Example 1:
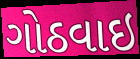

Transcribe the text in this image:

ગોઠવાઇ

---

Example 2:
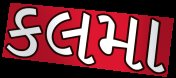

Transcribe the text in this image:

કલમા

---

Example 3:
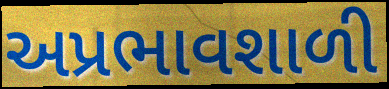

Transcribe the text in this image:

અપ્રભાવશાળી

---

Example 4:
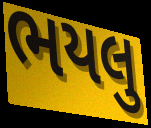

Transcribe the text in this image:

ભયલુ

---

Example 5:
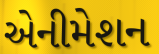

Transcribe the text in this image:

એનીમેશન